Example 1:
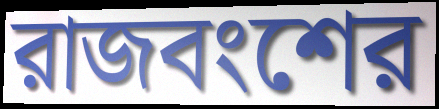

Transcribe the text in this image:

রাজবংশের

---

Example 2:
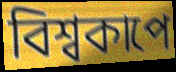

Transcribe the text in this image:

বিশ্বকাপে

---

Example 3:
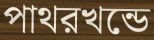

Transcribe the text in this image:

পাথরখন্ডে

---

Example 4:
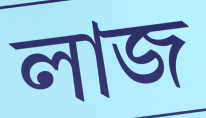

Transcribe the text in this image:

লাজ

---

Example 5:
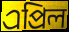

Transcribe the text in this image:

এপ্রিল